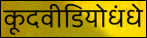
कूदवीडियोधंधे